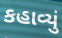
કહાવ્યું